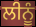
ਲੀਨੂੰ